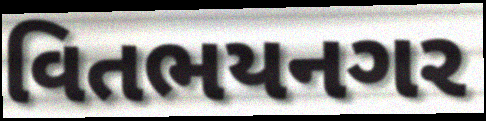
વિતભયનગર